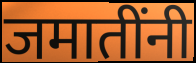
जमातींनी